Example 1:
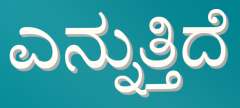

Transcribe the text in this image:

ಎನ್ನುತ್ತಿದೆ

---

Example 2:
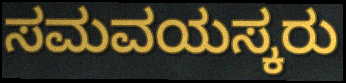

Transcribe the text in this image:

ಸಮವಯಸ್ಕರು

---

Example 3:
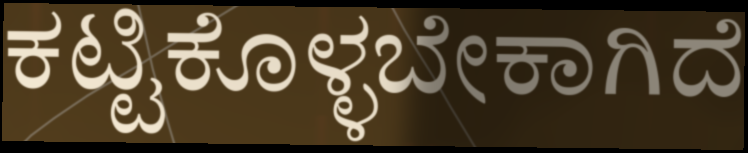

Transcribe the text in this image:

ಕಟ್ಟಿಕೊಳ್ಳಬೇಕಾಗಿದೆ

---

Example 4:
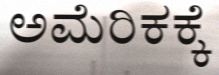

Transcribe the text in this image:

ಅಮೆರಿಕಕ್ಕೆ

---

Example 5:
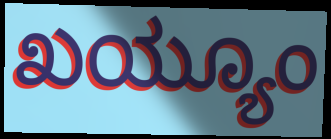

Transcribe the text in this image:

ಖಯ್ಯೂಂ